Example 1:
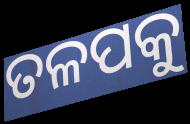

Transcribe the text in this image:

ତଳପକୁ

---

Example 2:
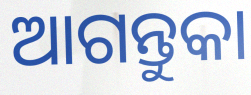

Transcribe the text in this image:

ଆଗନ୍ତୁକା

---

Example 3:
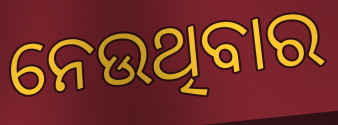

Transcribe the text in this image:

ନେଉଥିବାର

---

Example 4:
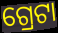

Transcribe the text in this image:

ଗ୍ରେଟା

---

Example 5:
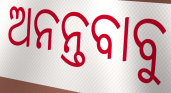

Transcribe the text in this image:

ଅନନ୍ତବାବୁ